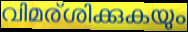
വിമര്ശിക്കുകയും